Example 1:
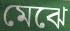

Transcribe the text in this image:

মেঝে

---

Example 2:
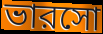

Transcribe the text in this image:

ভারসো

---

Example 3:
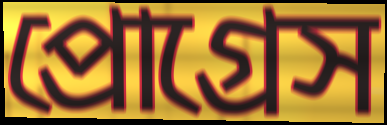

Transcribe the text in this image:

প্রোগ্রেস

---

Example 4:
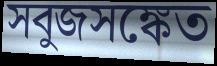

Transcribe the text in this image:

সবুজসঙ্কেত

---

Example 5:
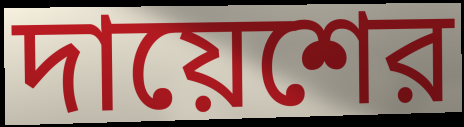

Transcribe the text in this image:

দায়েশের